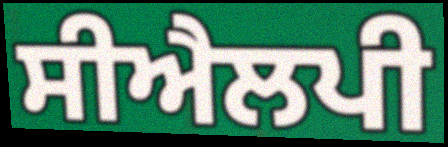
ਸੀਐਲਪੀ